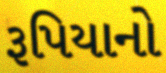
રૂપિયાનો